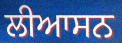
ਲੀਆਸਨ